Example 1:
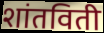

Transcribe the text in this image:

शांतविती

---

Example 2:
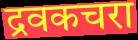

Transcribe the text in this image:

द्रवकचरा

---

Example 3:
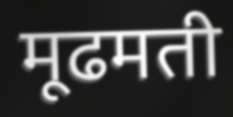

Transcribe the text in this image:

मूढमती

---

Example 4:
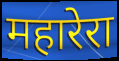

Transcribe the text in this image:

महारेरा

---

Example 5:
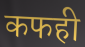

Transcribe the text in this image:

कफही